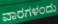
ವಾರಗಳಂದು